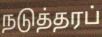
நடுத்தரப்